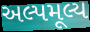
અલ્પમૂલ્ય